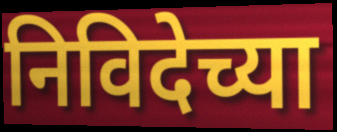
निविदेच्या